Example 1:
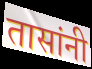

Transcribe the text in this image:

तासांनी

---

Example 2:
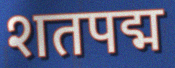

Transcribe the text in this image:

शतपद्म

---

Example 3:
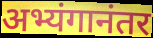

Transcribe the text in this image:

अभ्यंगानंतर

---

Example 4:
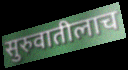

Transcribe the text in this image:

सुरुवातीलाच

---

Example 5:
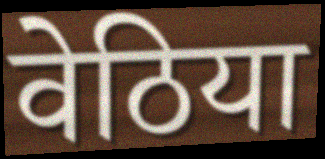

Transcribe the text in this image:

वेठिया